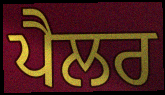
ਪੈਲਰ